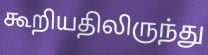
கூறியதிலிருந்து